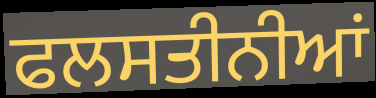
ਫਲਸਤੀਨੀਆਂ